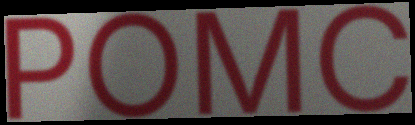
POMC